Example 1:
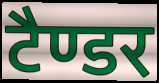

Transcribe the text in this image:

टैण्डर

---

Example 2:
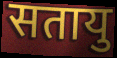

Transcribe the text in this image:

सतायु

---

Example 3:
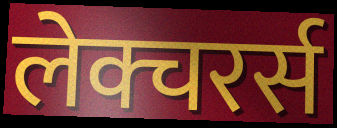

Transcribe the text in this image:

लेक्चरर्स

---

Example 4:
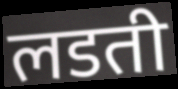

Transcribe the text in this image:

लडती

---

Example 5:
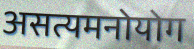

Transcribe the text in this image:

असत्यमनोयोग